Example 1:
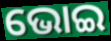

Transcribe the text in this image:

ଭୋଇ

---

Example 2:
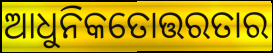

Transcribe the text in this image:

ଆଧୁନିକତୋତ୍ତରତାର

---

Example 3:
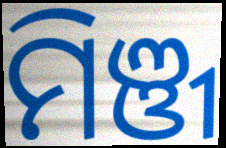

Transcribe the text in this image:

ମିଞ୍ଜ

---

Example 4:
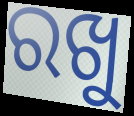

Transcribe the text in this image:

ରଖୁ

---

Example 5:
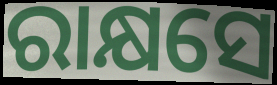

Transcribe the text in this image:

ରାକ୍ଷସେ